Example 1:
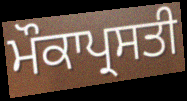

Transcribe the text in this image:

ਮੌਕਾਪ੍ਰਸਤੀ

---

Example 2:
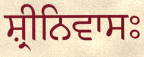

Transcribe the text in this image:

ਸ਼੍ਰੀਨਿਵਾਸਃ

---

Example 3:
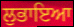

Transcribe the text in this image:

ਲੁਭਾਇਆ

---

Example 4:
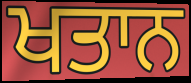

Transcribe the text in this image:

ਖਤਾਨ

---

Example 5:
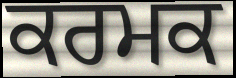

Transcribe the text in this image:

ਕਰਮਕ